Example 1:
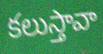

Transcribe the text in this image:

కలుస్తావా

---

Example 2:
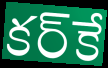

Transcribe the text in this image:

కర్‌కే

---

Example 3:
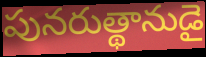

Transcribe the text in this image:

పునరుత్థానుడై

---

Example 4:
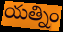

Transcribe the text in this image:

యత్నిం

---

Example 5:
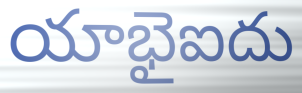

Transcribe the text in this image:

యాభైఐదు